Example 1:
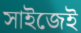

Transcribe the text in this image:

সাইজেই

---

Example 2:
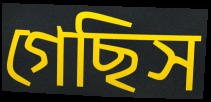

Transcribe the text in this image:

গেছিস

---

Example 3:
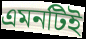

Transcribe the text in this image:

এমনটিই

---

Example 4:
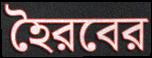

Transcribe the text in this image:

হৈরবের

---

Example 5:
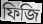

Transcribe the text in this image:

ফিজি